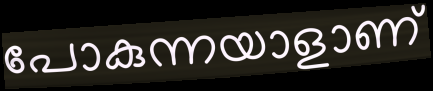
പോകുന്നയാളാണ്